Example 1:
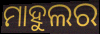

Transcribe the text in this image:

ମାହୁଲର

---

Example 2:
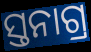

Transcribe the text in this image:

ସ୍ତନାଗ୍ର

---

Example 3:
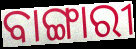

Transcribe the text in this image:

ବାଙ୍ଗାରୀ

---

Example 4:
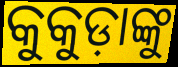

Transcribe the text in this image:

କୁକୁଡ଼ାଙ୍କୁ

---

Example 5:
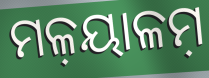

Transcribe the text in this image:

ମଳ଼ୟାଳମ଼